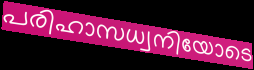
പരിഹാസധ്വനിയോടെ